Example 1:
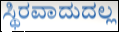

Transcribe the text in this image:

ಸ್ಥಿರವಾದುದಲ್ಲ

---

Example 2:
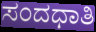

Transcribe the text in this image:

ಸಂದಧಾತಿ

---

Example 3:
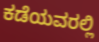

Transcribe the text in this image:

ಕಡೆಯವರಲ್ಲಿ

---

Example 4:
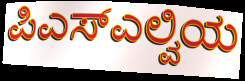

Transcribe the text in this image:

ಪಿಎಸ್ಎಲ್ವಿಯ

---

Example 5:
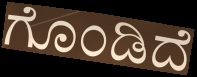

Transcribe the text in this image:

ಗೊಂಡಿದೆ